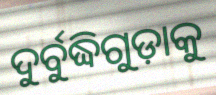
ଦୁର୍ବୁଦ୍ଧିଗୁଡ଼ାକୁ